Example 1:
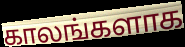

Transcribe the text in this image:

காலங்களாக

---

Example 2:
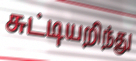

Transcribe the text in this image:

சுட்டியறிந்து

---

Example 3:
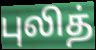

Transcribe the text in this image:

புலித்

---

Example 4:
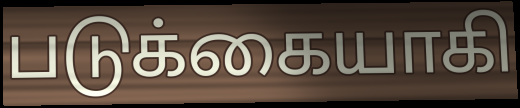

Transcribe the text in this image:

படுக்கையாகி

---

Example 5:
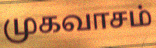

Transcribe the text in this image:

முகவாசம்